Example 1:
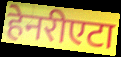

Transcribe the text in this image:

हेनरीएटा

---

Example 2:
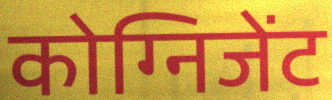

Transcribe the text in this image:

कोग्निजेंट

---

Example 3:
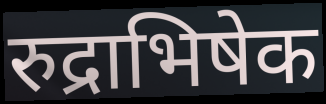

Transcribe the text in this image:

रुद्राभिषेक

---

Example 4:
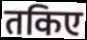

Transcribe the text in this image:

तकिए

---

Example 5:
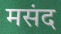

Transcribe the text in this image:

मसंद